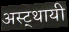
अस्ट्थायी